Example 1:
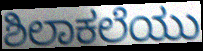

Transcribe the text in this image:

ಶಿಲಾಕಲೆಯು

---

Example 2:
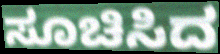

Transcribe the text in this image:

ಸೂಚಿಸಿದ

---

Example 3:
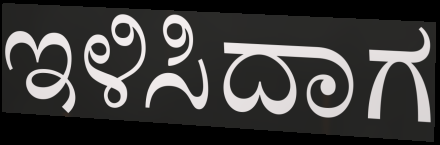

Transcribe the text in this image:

ಇಳಿಸಿದಾಗ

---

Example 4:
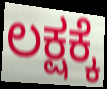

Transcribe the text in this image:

ಲಕ್ಷಕ್ಕೆ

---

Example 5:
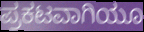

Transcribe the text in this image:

ಪ್ರಕಟವಾಗಿಯೂ